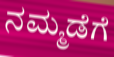
ನಮ್ಮಡೆಗೆ